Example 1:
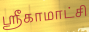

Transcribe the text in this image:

ஸ்ரீகாமாட்சி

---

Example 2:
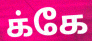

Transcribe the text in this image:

க்கே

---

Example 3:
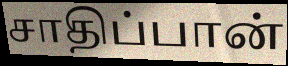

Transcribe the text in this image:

சாதிப்பான்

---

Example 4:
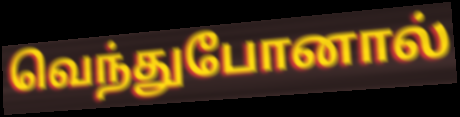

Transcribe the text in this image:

வெந்துபோனால்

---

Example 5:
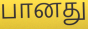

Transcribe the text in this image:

பானது